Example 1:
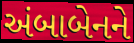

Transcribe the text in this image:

અંબાબેનને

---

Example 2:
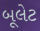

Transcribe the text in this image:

બૂલેટ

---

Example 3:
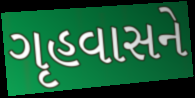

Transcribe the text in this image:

ગૃહવાસને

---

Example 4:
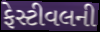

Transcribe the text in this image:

ફેસ્ટીવલની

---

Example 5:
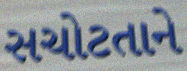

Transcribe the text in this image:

સચોટતાને